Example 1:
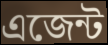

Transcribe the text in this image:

এজেন্ট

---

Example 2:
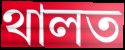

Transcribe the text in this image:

থালত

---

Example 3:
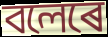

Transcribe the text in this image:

বলেৰে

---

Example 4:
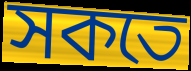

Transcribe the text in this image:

সকতে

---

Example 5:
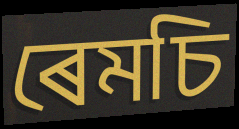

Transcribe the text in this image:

ৰেমচি